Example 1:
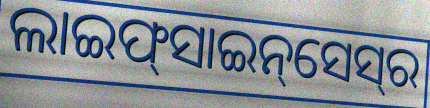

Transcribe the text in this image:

ଲାଇଫ୍‌ସାଇନ୍‌ସେସ୍‌ର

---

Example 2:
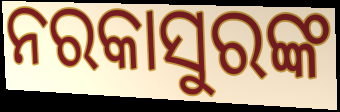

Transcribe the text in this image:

ନରକାସୁରଙ୍କ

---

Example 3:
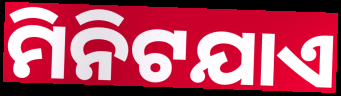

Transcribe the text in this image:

ମିନିଟଯାଏ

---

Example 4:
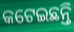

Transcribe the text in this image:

କଟେଇଛନ୍ତି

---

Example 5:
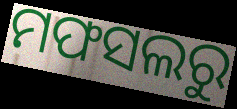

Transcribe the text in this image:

ମଫସଲରୁ